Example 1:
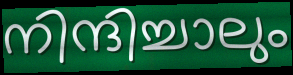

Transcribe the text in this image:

നിന്ദിച്ചാലും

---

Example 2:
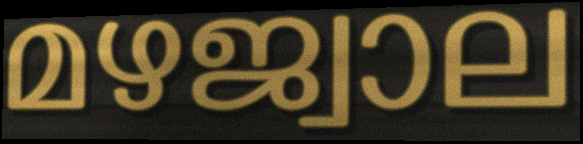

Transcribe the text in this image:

മഴജ്വാല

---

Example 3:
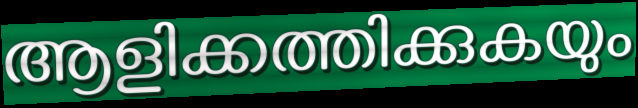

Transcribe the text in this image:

ആളിക്കത്തിക്കുകയും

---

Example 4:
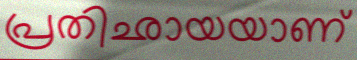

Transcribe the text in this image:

പ്രതിഛായയാണ്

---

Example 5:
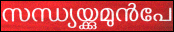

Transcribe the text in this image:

സന്ധ്യയ്ക്കുമുൻപേ